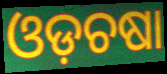
ଓଡ଼ଚଷା